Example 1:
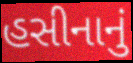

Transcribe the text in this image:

હસીનાનું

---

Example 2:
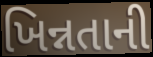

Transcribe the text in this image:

ખિન્નતાની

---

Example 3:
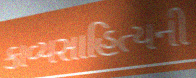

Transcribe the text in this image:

કાવ્યસાહિત્યની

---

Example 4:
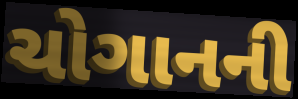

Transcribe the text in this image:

ચોગાનની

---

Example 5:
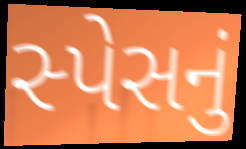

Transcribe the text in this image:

સ્પેસનું